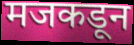
मजकडून